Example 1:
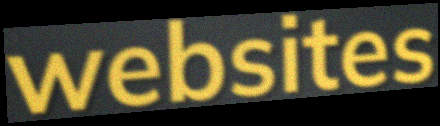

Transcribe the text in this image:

websites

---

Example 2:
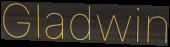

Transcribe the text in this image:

Gladwin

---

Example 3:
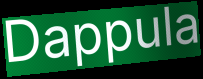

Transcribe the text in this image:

Dappula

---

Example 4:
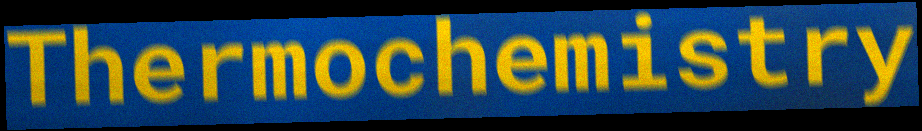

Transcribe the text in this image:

Thermochemistry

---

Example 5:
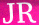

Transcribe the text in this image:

JR